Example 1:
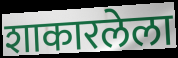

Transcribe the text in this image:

शाकारलेला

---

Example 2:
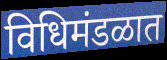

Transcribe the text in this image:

विधिमंडळात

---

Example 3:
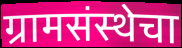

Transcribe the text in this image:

ग्रामसंस्थेचा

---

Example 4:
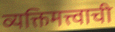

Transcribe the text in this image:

व्यक्तिमत्त्वाची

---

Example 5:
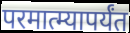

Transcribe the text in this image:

परमात्म्यापर्यंत